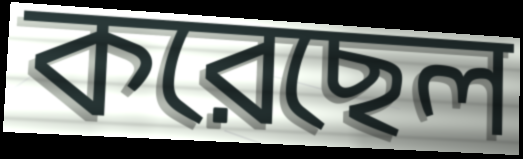
করেছেল